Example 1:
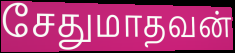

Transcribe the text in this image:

சேதுமாதவன்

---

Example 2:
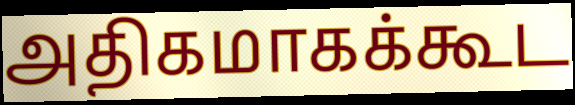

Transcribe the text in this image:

அதிகமாகக்கூட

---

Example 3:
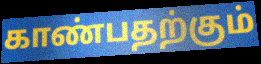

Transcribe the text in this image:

காண்பதற்கும்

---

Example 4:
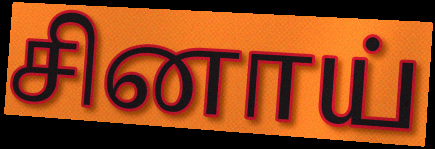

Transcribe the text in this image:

சினாய்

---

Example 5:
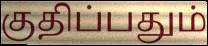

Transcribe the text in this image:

குதிப்பதும்